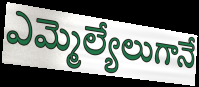
ఎమ్మెల్యేలుగానే